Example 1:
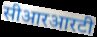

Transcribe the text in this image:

सीआरआरटी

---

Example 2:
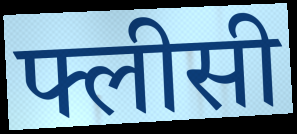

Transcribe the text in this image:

फ्लीसी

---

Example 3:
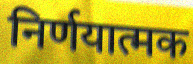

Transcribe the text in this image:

निर्णयात्मक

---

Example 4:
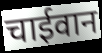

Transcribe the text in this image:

चाईवान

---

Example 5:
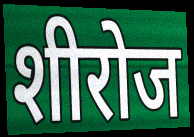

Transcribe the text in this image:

शीरोज